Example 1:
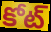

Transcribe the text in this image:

కోట్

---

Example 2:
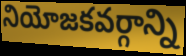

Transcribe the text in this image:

నియోజకవర్గాన్ని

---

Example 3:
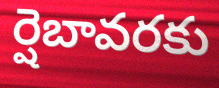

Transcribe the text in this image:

ర్షెబావరకు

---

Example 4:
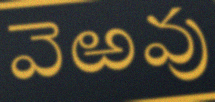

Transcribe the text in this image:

వెఱవు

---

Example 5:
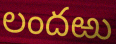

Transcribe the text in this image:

లందఱు